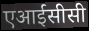
एआईसीसी